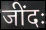
जींदः